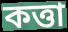
কত্তা